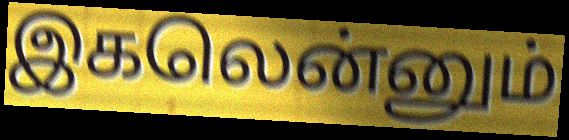
இகலென்னும்